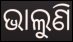
ଭାଲୁଣି